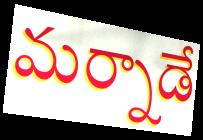
మర్నాడే